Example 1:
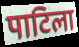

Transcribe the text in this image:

पाटिला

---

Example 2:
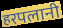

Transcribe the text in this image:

हरपलानी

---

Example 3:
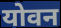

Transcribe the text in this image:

योवन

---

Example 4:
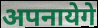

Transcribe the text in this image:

अपनायेगे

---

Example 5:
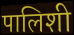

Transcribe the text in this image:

पालिशी